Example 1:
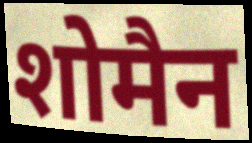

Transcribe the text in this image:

शोमैन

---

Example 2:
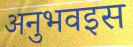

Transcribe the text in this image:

अनुभवइस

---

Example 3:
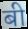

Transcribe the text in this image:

बी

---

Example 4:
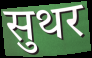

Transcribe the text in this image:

सुथर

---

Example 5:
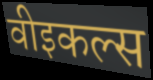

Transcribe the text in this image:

वीइकल्स